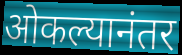
ओकल्यानंतर